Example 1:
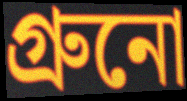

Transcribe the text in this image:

গ্রুনো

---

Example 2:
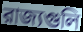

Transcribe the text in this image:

রাজ্যগুলি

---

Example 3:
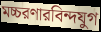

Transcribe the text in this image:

মচ্চরণারবিন্দযুগ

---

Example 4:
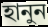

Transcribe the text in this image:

হানুন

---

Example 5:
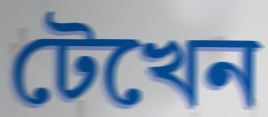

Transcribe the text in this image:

টেখেন